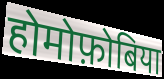
होमोफ़ोबिया